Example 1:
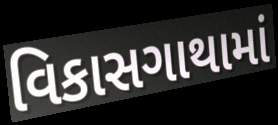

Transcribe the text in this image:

વિકાસગાથામાં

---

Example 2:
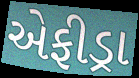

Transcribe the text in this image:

એફીડ્રા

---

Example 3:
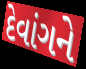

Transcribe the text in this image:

દેવાંગને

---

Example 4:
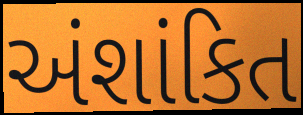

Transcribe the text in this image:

અંશાંકિત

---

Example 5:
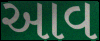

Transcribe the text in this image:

આવ